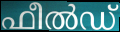
ഫീൽഡ്